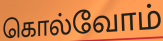
கொல்வோம்